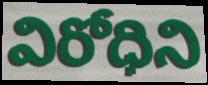
విరోధిని